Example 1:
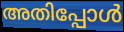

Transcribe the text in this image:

അതിപ്പോൾ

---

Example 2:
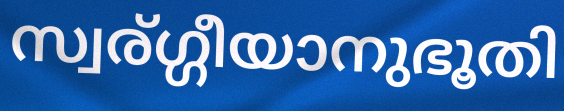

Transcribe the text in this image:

സ്വര്ഗ്ഗീയാനുഭൂതി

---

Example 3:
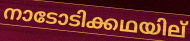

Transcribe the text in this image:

നാടോടിക്കഥയില്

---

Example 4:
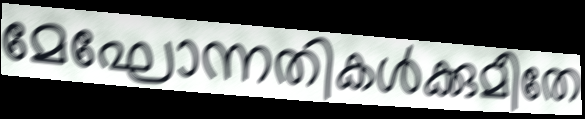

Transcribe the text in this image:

മേഘോന്നതികൾക്കുമീതേ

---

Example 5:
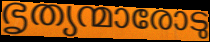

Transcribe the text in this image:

ഭൃത്യന്മാരോടു